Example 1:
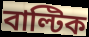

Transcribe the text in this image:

বাল্টিক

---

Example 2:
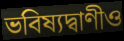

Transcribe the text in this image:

ভবিষ্যদ্বাণীও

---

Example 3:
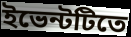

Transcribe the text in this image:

ইভেন্টটিতে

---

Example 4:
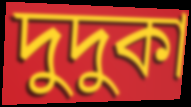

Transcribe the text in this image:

দুদুকা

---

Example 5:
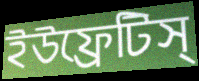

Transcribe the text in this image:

ইউফ্রেটিস্